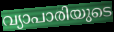
വ്യാപാരിയുടെ